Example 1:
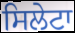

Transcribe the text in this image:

ਸਿਲੇਟਾ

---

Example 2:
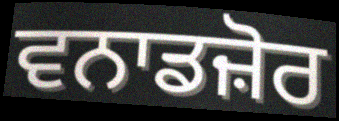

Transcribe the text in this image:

ਵਨਾਡਜ਼ੋਰ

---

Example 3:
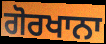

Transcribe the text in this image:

ਗੋਰਖਾਨਾ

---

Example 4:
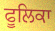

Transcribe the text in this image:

ਫੂਲਿਕਾ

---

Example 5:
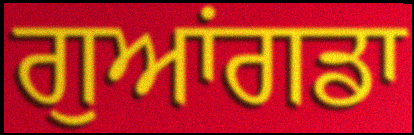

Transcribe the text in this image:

ਗੁਆਂਗਡਾ